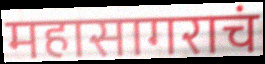
महासागराचं